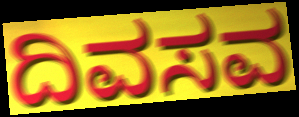
ದಿವಸವ